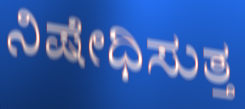
ನಿಷೇಧಿಸುತ್ತ